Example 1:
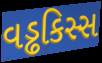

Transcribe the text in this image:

વડ્ઢકિસ્સ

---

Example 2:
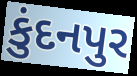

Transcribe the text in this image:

કુંદનપુર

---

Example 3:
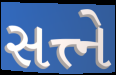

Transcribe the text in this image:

સત્ત્ને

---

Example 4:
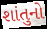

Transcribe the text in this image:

શાંતુનો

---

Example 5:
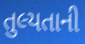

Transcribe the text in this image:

તુલ્યતાની